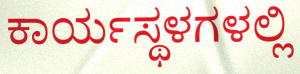
ಕಾರ್ಯಸ್ಥಳಗಳಲ್ಲಿ